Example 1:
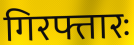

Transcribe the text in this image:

गिरफ्तारः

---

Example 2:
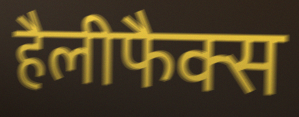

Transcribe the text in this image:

हैलीफैक्स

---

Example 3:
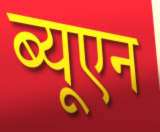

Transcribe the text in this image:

ब्यूएन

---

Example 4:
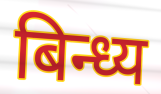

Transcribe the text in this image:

बिन्ध्य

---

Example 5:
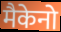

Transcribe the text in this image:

मैकेनो